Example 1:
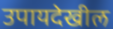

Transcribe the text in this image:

उपायदेखील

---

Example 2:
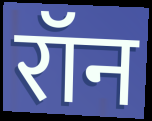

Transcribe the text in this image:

रॉन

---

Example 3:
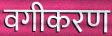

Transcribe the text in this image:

वगीकरण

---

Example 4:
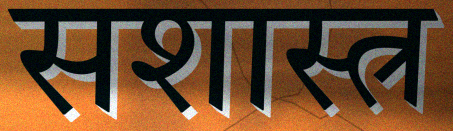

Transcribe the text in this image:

सशास्त्र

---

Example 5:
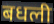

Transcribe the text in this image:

बधली